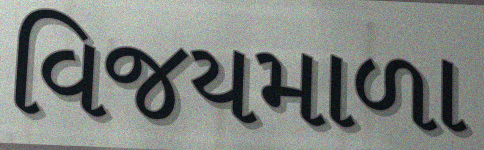
વિજયમાળા